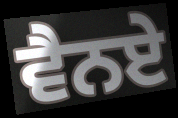
ਵੈਨਏ